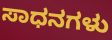
ಸಾಧನಗಳು